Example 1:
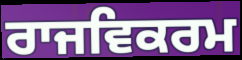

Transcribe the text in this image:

ਰਾਜਵਿਕਰਮ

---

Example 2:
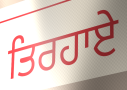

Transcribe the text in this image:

ਤਿਰਹਾਏ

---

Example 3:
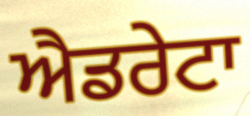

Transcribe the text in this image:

ਐਡਰੇਟਾ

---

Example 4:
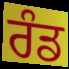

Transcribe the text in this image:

ਰੰਡ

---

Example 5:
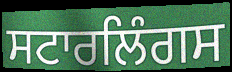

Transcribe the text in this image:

ਸਟਾਰਲਿੰਗਸ